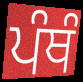
ਪੰਥੰ